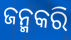
ଜନ୍ମକରି